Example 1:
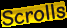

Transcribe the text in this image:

Scrolls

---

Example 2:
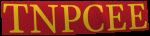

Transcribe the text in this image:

TNPCEE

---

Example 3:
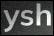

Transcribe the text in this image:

ysh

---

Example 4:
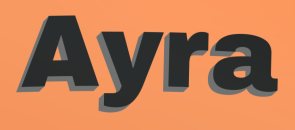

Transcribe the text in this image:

Ayra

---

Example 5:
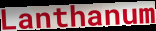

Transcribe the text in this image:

Lanthanum